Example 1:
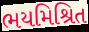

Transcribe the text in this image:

ભયમિશ્રિત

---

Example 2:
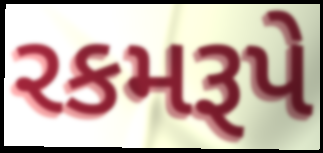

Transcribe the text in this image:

રકમરૂપે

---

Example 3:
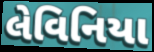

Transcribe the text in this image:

લેવિનિયા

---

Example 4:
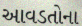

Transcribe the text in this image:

આવડતોના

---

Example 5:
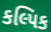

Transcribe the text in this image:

કલ્પિક